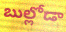
బుల్లోడా